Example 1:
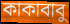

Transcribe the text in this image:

কাকাবাবু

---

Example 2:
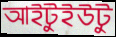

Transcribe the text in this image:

আইটুইউটু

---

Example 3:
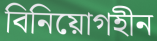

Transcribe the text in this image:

বিনিয়োগহীন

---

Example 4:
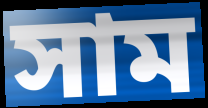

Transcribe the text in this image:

সাম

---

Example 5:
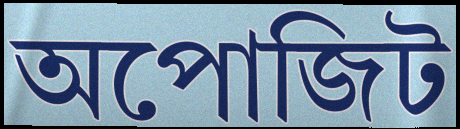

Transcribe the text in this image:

অপোজিট